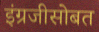
इंग्रजीसोबत